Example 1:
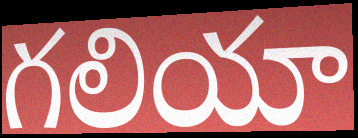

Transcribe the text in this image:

గలియా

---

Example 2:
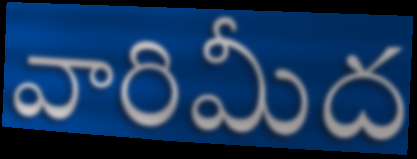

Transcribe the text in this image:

వారిమీద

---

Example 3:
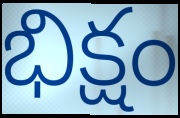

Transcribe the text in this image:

భిక్షం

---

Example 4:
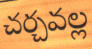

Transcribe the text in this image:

చర్చవల్ల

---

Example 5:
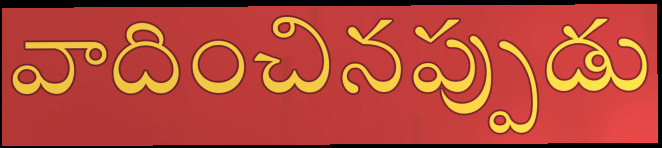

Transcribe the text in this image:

వాదించినప్పుడు